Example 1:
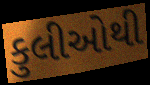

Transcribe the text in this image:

કુલીઓથી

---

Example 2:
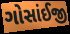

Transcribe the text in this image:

ગોસાંઈજી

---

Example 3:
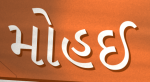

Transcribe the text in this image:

મોહઈ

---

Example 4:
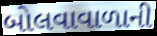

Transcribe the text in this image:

બોલવાવાળાની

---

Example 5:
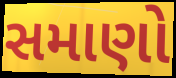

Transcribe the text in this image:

સમાણો